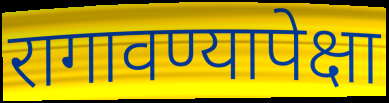
रागावण्यापेक्षा